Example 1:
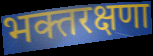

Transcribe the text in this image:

भक्तरक्षणा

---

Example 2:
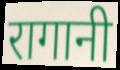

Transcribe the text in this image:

रागानी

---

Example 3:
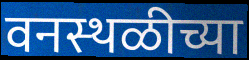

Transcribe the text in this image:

वनस्थळीच्या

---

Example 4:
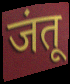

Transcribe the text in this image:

जंतू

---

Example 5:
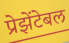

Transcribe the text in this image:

प्रेझेंटेबल